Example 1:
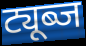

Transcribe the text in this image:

ट्यूब्ज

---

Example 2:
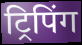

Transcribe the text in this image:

ट्रिपिंग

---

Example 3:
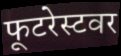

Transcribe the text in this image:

फूटरेस्टवर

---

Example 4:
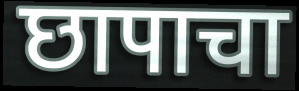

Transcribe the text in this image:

छापाचा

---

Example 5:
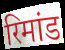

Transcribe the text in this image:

रिमांड